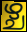
ഴ്ച